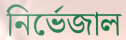
নির্ভেজাল